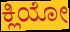
ಕ್ಲಿಯೋ